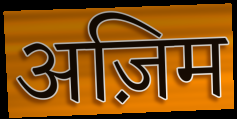
अज़िम